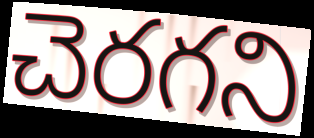
చెరగని